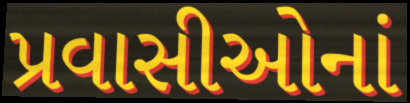
પ્રવાસીઓનાં